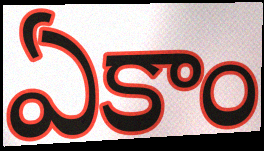
ఏకాం